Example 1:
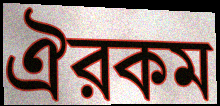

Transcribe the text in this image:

ঐরকম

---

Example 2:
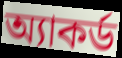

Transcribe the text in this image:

অ্যাকর্ড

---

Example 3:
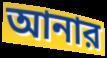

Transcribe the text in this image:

আনার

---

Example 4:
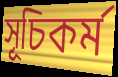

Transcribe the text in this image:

সূচিকর্ম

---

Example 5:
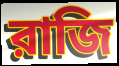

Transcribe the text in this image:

রাজি